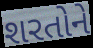
શરતોને